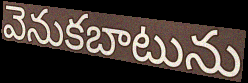
వెనుకబాటును